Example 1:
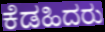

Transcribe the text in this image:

ಕೆಡಹಿದರು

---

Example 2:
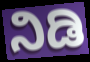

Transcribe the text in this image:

ನಿಡಿ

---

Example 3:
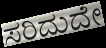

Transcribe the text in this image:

ಸರಿದುದೇ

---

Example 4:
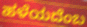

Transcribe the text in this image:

ಹಳೆಯದೆಂಬ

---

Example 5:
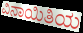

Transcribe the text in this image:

ವಿನಾಯಿತಿಯ